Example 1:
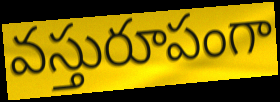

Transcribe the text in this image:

వస్తురూపంగా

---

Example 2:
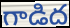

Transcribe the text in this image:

గాడిద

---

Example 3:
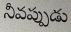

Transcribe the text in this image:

నీవప్పుడు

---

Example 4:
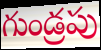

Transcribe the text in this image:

గుండ్రపు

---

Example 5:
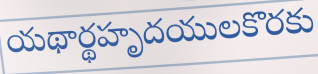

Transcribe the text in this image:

యథార్థహృదయులకొరకు